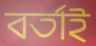
বৰ্তাই